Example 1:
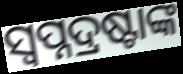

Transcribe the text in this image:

ସ୍ୱପ୍ନଦ୍ରଷ୍ଟାଙ୍କ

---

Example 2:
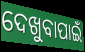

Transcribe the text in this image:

ଦେଖୁବାପାଇଁ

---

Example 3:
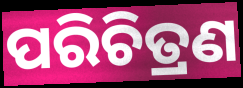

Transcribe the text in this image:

ପରିଚିତ୍ରଣ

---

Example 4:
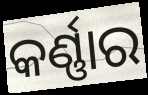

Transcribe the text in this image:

କର୍ଣ୍ଣାର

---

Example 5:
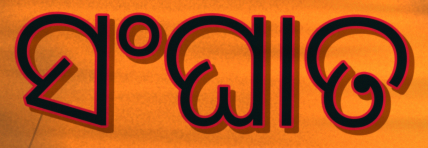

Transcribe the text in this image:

ସଂଘାତ